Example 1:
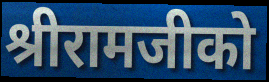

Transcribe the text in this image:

श्रीरामजीको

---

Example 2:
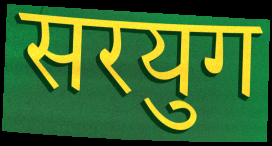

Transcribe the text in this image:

सरयुग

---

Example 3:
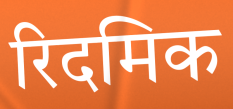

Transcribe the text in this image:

रिदमिक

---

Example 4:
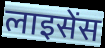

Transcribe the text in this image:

लाइसेंस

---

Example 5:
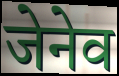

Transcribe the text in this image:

जेनेव